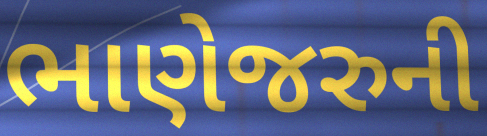
ભાણેજરુની